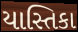
યાસ્તિકા